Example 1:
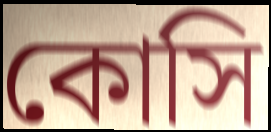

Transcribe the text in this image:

কোসি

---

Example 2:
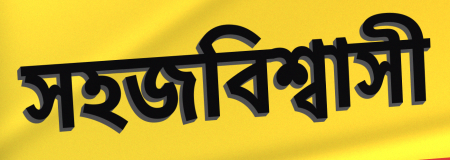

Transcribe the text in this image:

সহজবিশ্বাসী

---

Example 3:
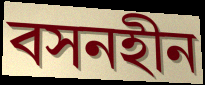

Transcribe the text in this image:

বসনহীন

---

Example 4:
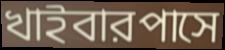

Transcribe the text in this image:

খাইবারপাসে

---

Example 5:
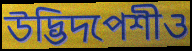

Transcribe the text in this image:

উদ্ভিদপেশীও